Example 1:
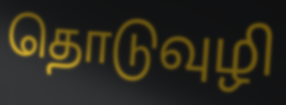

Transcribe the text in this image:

தொடுவுழி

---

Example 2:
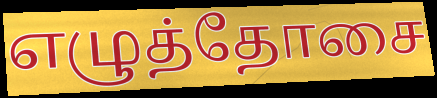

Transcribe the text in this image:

எழுத்தோசை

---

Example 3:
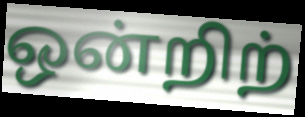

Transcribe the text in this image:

ஒன்றிற்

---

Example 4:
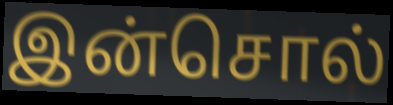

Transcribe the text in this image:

இன்சொல்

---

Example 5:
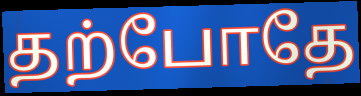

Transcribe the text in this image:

தற்போதே